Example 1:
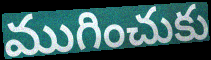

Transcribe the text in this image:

ముగించుకు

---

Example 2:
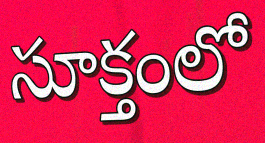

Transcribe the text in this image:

సూక్తంలో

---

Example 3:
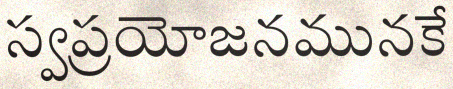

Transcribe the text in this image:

స్వప్రయోజనమునకే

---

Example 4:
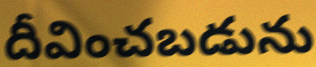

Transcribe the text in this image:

దీవించబడును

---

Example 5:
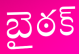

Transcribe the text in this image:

బైఠక్